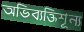
অভিব্যক্তিশূন্য